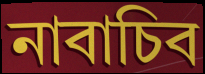
নাবাচিব